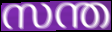
സന്ത